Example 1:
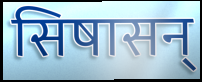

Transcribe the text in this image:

सिषासन्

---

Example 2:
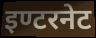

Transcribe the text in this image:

इण्टरनेट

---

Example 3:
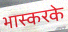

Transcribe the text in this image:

भास्करके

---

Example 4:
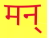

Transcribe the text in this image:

मन्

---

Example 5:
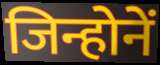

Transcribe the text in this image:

जिन्होनें